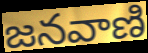
జనవాణి